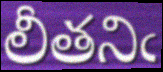
లీతనిఁ